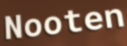
Nooten